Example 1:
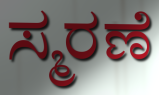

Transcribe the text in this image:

ಸ್ಮರಣೆ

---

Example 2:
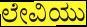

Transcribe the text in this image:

ಲೇವಿಯು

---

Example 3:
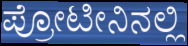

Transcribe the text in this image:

ಪ್ರೋಟೀನಿನಲ್ಲಿ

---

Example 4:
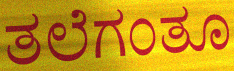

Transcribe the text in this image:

ತಲೆಗಂತೂ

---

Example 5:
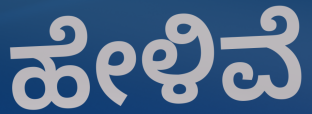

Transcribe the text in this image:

ಹೇಳಿವೆ